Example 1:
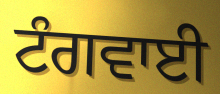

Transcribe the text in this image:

ਟੰਗਵਾਈ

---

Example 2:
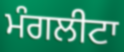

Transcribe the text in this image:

ਮੰਗਲੀਟਾ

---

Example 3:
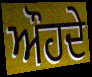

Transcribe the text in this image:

ਔਹਦੇ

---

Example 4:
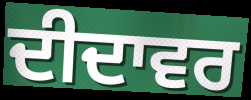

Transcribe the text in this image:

ਦੀਦਾਵਰ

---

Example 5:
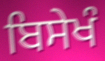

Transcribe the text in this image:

ਬਿਸੇਖੰ